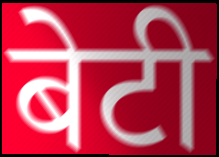
बेटी